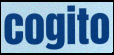
cogito